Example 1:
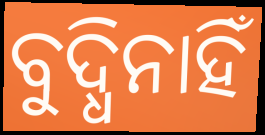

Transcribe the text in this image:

ବୁଦ୍ଧିନାହିଁ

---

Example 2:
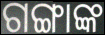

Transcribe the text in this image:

ଗଙ୍ଗାଙ୍କ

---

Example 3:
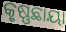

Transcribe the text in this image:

କୃଷ୍ଣଛାୟା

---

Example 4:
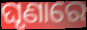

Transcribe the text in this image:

ଘୃଣାରେ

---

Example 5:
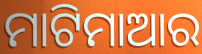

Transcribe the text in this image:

ମାଟିମାଆର